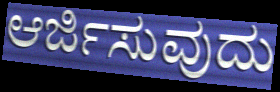
ಆರ್ಜಿಸುವುದು